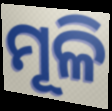
ମୂଳି